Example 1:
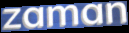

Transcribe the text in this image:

zaman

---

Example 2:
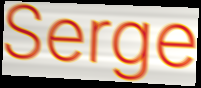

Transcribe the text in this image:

Serge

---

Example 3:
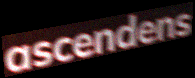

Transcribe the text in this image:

ascendens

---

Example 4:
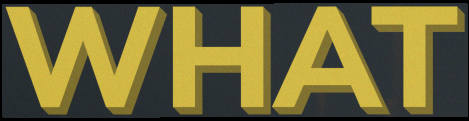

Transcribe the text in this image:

WHAT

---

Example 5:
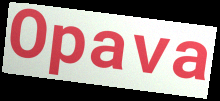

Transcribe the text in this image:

Opava